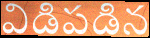
విడిపడిన